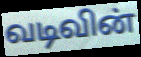
வடிவின்